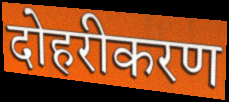
दोहरीकरण